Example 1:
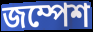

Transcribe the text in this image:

জম্পেশ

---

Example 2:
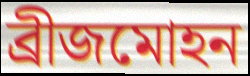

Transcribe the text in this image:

ব্রীজমোহন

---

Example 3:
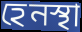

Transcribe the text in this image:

হেনস্থা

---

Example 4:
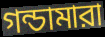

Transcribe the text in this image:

গন্ডামারা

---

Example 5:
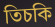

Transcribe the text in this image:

তিচকি